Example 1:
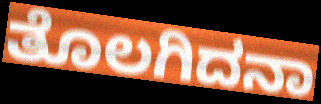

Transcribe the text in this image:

ತೊಲಗಿದನಾ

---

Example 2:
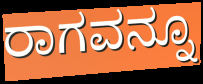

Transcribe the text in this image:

ರಾಗವನ್ನೂ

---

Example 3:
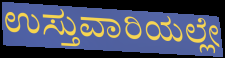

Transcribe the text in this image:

ಉಸ್ತುವಾರಿಯಲ್ಲೇ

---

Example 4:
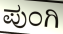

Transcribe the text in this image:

ಪುಂಗಿ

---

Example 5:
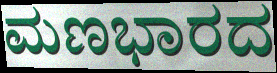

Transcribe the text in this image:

ಮಣಭಾರದ